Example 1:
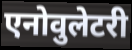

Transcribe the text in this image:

एनोवुलेटरी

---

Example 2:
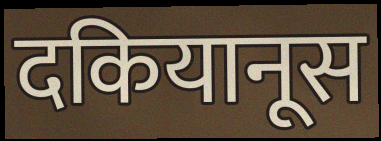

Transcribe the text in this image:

दकियानूस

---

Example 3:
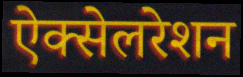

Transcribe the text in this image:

ऐक्सेलरेशन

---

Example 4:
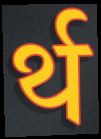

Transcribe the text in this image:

र्थ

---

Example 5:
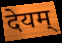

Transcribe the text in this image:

देयम्